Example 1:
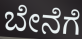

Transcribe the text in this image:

ಬೇನೆಗೆ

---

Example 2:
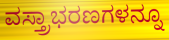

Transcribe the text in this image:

ವಸ್ತ್ರಾಭರಣಗಳನ್ನೂ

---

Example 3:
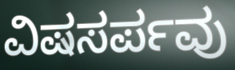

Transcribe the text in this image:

ವಿಷಸರ್ಪವು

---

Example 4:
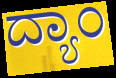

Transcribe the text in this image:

ದ್ಯಾಂ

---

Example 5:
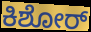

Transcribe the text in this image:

ಕಿಶೋರ್